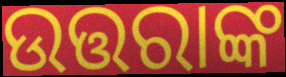
ଉତ୍ତରାଙ୍କ